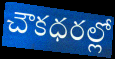
చౌకధరల్లో